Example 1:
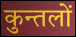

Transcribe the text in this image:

कुन्तलों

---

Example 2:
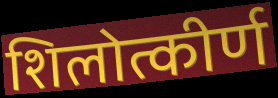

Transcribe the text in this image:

शिलोत्कीर्ण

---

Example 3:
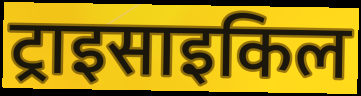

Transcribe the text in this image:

ट्राइसाइकिल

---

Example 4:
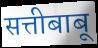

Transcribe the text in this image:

सत्तीबाबू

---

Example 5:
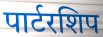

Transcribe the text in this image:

पार्टरशिप